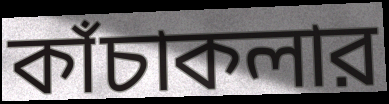
কাঁচাকলার